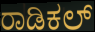
ರಾಡಿಕಲ್